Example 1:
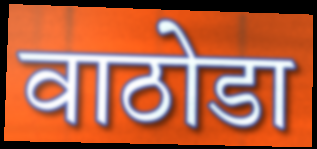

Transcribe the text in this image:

वाठोडा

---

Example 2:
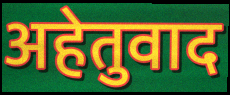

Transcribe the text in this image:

अहेतुवाद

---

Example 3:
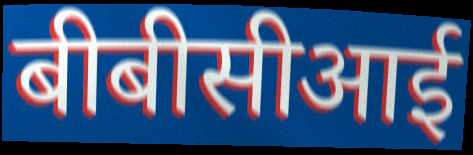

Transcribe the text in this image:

बीबीसीआई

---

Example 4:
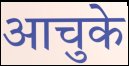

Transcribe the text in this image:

आचुके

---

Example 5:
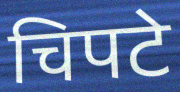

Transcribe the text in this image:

चिपटे